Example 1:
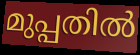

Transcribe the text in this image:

മുപ്പതിൽ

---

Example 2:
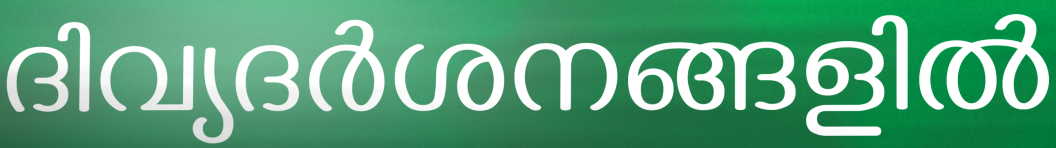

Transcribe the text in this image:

ദിവ്യദർശനങ്ങളിൽ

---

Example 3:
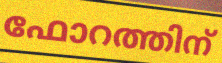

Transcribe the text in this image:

ഫോറത്തിന്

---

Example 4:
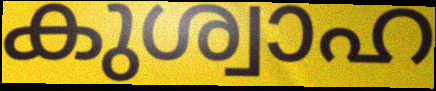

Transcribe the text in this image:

കുശ്വാഹ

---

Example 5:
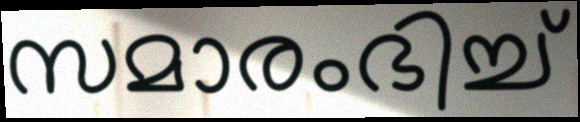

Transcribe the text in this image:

സമാരംഭിച്ച്